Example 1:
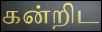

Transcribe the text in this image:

கன்றிட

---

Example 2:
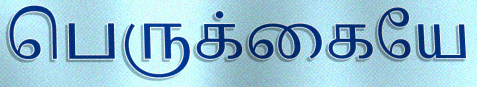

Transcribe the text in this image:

பெருக்கையே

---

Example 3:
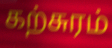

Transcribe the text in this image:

கற்சுரம்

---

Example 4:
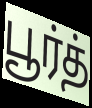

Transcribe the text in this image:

பூர்த்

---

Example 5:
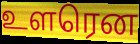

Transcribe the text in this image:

உளரென